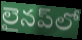
లైనప్‌లో